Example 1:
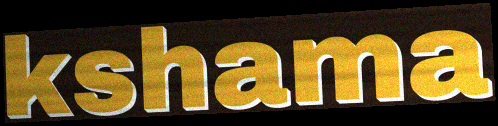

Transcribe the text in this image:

kshama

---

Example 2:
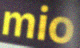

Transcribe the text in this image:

mio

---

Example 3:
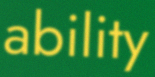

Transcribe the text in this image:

ability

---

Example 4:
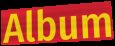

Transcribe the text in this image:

Album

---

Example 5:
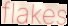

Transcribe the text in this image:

flakes